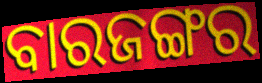
ବାରଜଙ୍ଗର